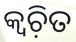
କ୍ୱଚ଼ିତ